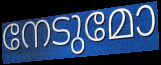
നേടുമോ